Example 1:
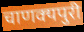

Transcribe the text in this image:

चाणक्यपुरी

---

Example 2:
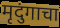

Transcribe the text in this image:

मृदुंगाचा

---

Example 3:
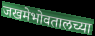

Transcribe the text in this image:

जखमेभोवतालच्या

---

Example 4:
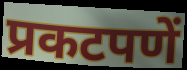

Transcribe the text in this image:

प्रकटपणें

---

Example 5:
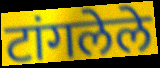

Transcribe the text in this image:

टांगलेले